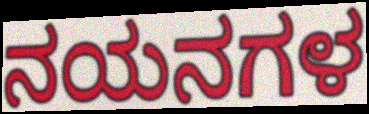
ನಯನಗಳ